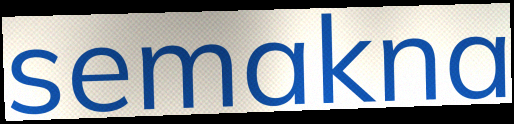
semakna